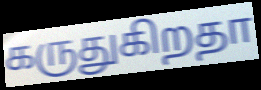
கருதுகிறதா